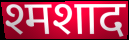
श्मशाद